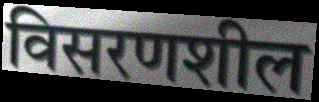
विसरणशील